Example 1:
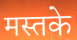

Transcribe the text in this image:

मस्तके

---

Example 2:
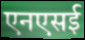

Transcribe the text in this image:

एनएसई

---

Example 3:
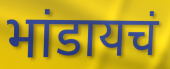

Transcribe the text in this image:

भांडायचं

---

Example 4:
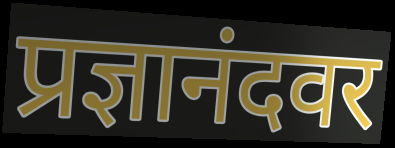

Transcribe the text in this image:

प्रज्ञानंदवर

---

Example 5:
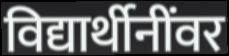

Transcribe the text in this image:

विद्यार्थीनींवर